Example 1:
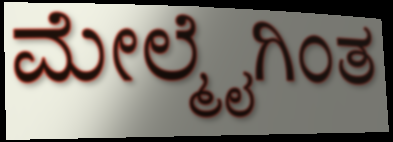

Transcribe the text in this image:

ಮೇಲ್ಮೈಗಿಂತ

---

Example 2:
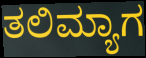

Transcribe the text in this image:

ತಲಿಮ್ಯಾಗ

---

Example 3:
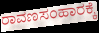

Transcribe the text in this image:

ರಾವಣಸಂಹಾರಕ್ಕೆ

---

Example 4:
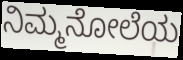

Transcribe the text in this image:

ನಿಮ್ಮನೋಲೆಯ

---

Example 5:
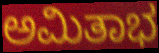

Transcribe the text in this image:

ಅಮಿತಾಭ